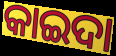
କାଇଦା